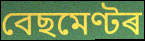
বেছমেণ্টৰ